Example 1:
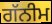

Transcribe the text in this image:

ਗੱਨੀਮ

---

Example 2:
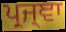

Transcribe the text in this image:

ਪ੍ਰਜ੍ਞਾ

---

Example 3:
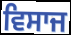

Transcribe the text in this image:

ਵਿਸਾਜ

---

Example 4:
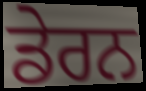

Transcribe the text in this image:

ਡੇਰਨ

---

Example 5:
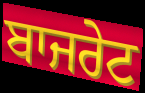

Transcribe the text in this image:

ਬਾਜਰੇਟ